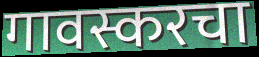
गावस्करचा